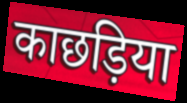
काछड़िया